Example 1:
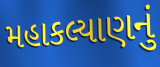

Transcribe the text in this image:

મહાકલ્યાણનું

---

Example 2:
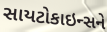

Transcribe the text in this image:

સાયટોકાઇન્સને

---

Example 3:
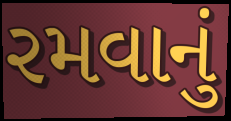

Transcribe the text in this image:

રમવાનું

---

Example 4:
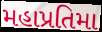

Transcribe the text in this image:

મહાપ્રતિમા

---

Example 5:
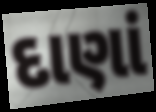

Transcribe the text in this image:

દાણાં